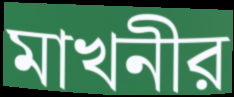
মাখনীর